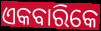
ଏକବାରିକେ